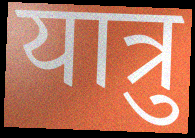
यात्रु